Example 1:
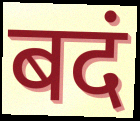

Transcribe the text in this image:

बदं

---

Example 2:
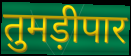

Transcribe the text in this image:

तुमड़ीपार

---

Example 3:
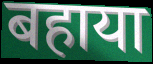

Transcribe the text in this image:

बहाया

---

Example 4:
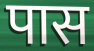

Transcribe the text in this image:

पास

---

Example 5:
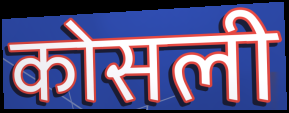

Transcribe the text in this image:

कोसली